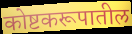
कोष्टकरूपातील